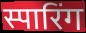
स्पारिंग